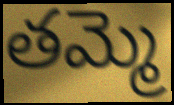
తమ్మె